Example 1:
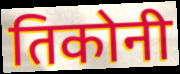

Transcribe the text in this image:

तिकोनी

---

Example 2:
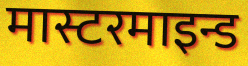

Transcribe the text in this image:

मास्टरमाइन्ड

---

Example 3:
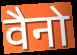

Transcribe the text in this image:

वैनो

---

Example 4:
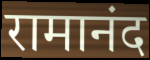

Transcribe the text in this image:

रामानंद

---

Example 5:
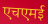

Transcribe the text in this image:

एचएमई